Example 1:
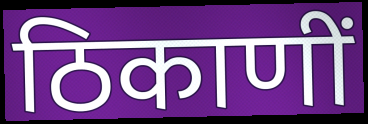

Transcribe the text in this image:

ठिकाणीं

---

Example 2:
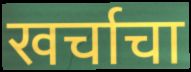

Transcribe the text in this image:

खर्चाचा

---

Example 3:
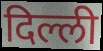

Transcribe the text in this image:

दिल्ली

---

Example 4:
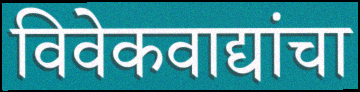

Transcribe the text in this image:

विवेकवाद्यांचा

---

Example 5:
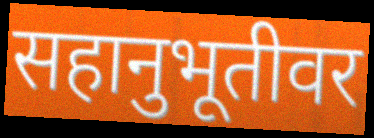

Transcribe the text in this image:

सहानुभूतीवर